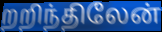
றறிந்திலேன்